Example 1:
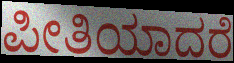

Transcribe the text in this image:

ಪೀತಿಯಾದರೆ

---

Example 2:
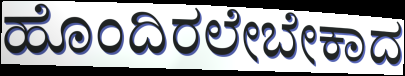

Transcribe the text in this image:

ಹೊಂದಿರಲೇಬೇಕಾದ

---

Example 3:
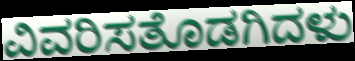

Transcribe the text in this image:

ವಿವರಿಸತೊಡಗಿದಳು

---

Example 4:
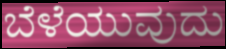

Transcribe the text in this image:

ಬೆಳೆಯುವುದು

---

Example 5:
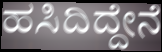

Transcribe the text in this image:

ಹಸಿದಿದ್ದೇನೆ